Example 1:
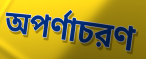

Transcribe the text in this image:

অপর্ণাচরণ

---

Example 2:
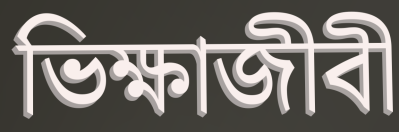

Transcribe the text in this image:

ভিক্ষাজীবী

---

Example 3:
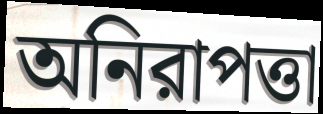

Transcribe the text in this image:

অনিরাপত্তা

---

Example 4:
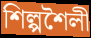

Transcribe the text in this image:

শিল্পশৈলী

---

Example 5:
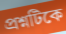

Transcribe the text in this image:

প্রশ্নটিকে